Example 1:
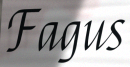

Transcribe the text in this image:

Fagus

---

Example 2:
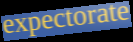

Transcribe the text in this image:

expectorate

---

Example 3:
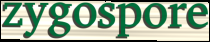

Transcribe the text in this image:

zygospore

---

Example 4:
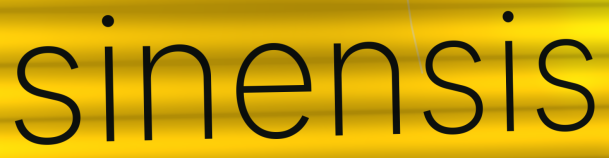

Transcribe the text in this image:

sinensis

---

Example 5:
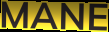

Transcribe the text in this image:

MANE